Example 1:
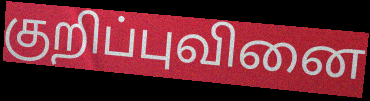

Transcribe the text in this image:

குறிப்புவினை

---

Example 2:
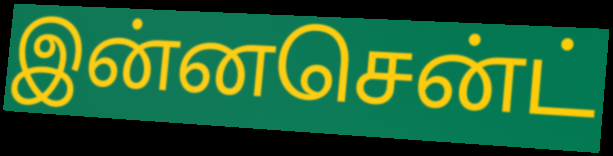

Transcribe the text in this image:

இன்னசென்ட்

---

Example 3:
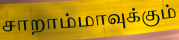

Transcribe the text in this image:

சாறாம்மாவுக்கும்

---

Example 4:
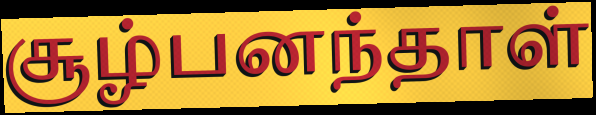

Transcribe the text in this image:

சூழ்பனந்தாள்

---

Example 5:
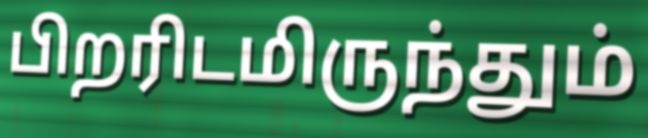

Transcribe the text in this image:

பிறரிடமிருந்தும்